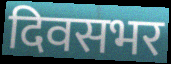
दिवसभर